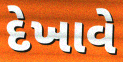
દેખાવે